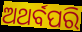
ଅଥର୍ବପରି